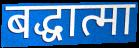
बद्धात्मा